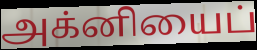
அக்னியைப்